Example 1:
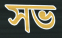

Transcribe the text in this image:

সভ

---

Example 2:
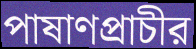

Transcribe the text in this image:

পাষাণপ্রাচীর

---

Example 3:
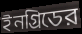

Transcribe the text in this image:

ইনগ্রিডের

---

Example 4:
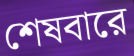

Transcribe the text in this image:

শেষবারে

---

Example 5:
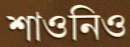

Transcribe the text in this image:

শাওনিও